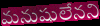
మనుషులేనని